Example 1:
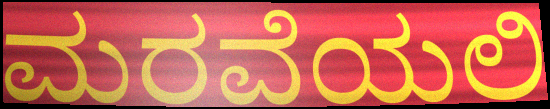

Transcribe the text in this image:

ಮರವೆಯಲಿ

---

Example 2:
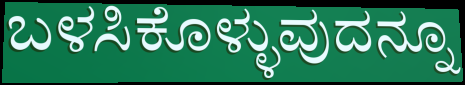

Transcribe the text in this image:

ಬಳಸಿಕೊಳ್ಳುವುದನ್ನೂ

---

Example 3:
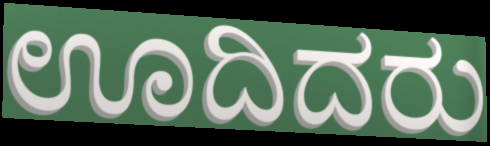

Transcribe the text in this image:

ಊದಿದರು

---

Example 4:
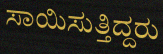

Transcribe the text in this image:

ಸಾಯಿಸುತ್ತಿದ್ದರು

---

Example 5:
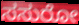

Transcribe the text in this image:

ಸಸುರೋ